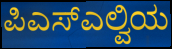
ಪಿಎಸ್ಎಲ್ವಿಯ